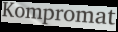
Kompromat